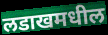
लडाखमधील